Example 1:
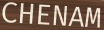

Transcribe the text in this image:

CHENAM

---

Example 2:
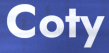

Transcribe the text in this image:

Coty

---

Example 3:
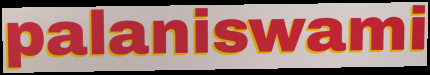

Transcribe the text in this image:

palaniswami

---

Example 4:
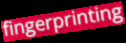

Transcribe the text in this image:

fingerprinting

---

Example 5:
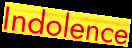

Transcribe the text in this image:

Indolence